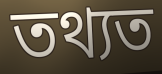
তথ্যত